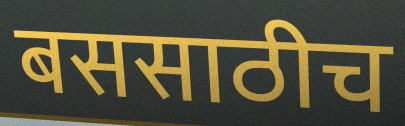
बससाठीच